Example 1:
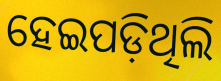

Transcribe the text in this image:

ହେଇପଡ଼ିଥିଲି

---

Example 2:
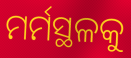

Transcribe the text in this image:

ମର୍ମସ୍ଥଳକୁ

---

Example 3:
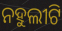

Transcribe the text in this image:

ନହୁଲୀଟି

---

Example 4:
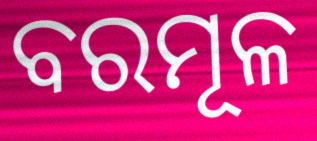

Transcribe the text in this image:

ବରମୂଳ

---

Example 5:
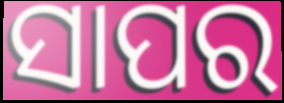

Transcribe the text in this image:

ସାପର